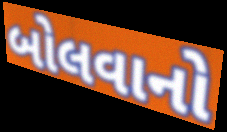
બોલવાનો